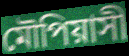
মৌপিয়াসী